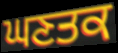
ਘਣਤਕ